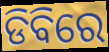
ଡିବିରେ